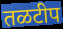
तळटीप